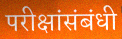
परीक्षांसंबंधी